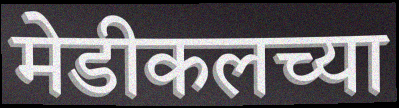
मेडीकलच्या